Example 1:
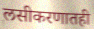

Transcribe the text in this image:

लसीकरणातही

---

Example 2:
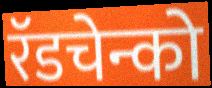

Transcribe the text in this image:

रॅडचेन्को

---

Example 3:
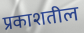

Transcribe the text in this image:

प्रकाशतील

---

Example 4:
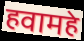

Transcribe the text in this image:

हवामहे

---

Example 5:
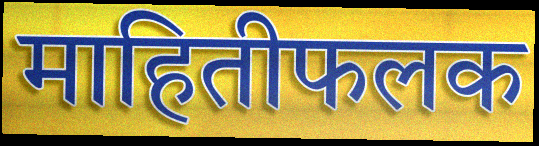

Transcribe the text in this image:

माहितीफलक